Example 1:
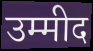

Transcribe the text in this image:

उम्मीद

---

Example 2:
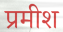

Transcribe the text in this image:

प्रमीश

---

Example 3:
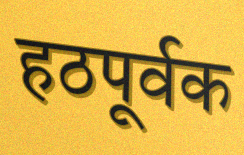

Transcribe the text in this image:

हठपूर्वक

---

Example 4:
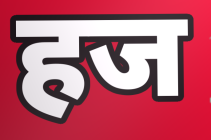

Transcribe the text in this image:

हज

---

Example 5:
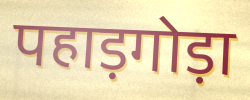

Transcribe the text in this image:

पहाड़गोड़ा